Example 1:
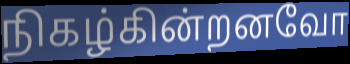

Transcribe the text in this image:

நிகழ்கின்றனவோ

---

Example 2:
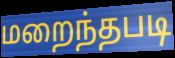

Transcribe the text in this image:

மறைந்தபடி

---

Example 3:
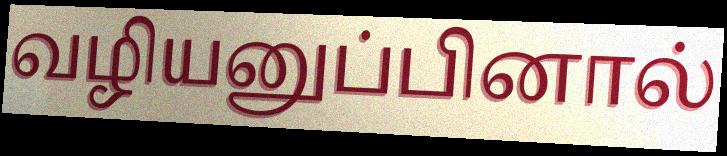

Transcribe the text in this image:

வழியனுப்பினால்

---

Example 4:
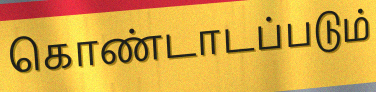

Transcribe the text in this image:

கொண்டாடப்படும்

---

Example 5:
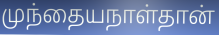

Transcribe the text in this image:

முந்தையநாள்தான்